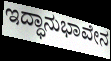
ಇದ್ಧಾನುಭಾವೇನ